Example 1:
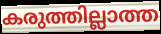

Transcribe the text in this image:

കരുത്തില്ലാത്ത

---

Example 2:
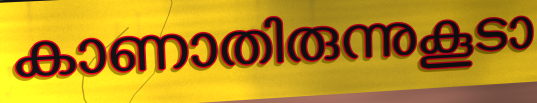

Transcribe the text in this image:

കാണാതിരുന്നുകൂടാ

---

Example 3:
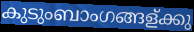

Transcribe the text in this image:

കുടുംബാംഗങ്ങള്ക്കു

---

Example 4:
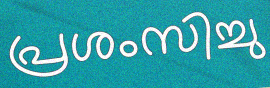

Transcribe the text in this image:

പ്രശംസിച്ചു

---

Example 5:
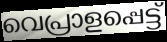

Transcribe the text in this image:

വെപ്രാളപ്പെട്ട്